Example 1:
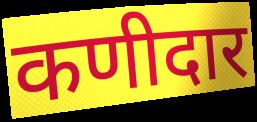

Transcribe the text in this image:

कणीदार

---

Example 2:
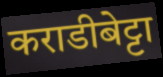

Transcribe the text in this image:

कराडीबेट्टा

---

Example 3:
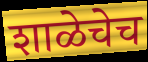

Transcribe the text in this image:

शाळेचेच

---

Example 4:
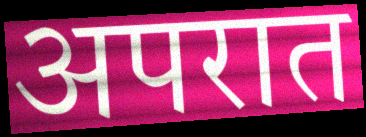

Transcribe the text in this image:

अपरात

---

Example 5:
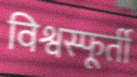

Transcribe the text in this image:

विश्वस्फूर्ती